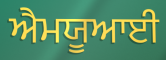
ਐਮਯੂਆਈ